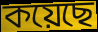
কয়েছে